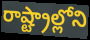
రాష్ట్రాల్లోని